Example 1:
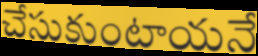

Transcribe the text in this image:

చేసుకుంటాయనే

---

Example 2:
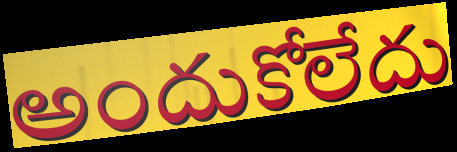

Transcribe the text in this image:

అందుకోలేదు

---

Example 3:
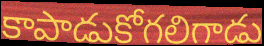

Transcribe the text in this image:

కాపాడుకోగలిగాడు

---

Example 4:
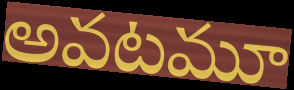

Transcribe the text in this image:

అవటమూ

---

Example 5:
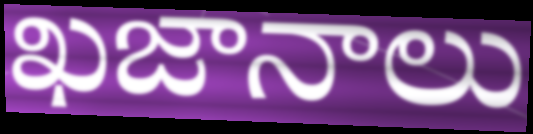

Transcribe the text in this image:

ఖజానాలు